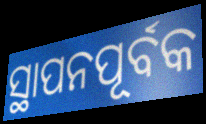
ସ୍ଥାପନପୂର୍ବକ